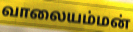
வாலையம்மன்